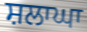
ਸ਼ਲਾਘਾ